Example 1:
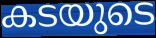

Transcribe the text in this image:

കടയുടെ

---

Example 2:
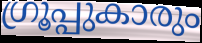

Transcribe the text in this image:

ഗ്രൂപ്പുകാരും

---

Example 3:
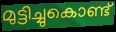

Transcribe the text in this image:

മുട്ടിച്ചുകൊണ്ട്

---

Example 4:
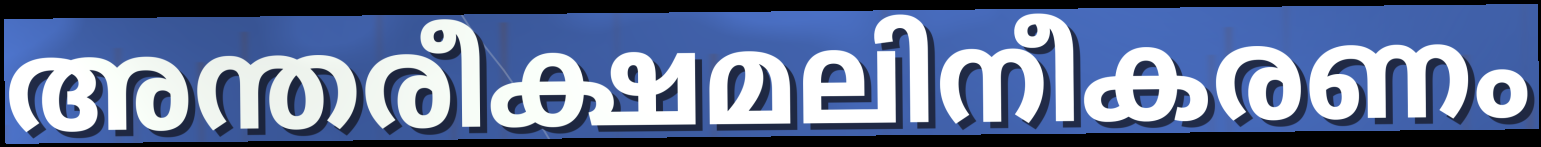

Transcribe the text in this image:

അന്തരീക്ഷമലിനീകരണം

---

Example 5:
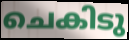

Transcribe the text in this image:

ചെകിടു